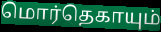
மொர்தெகாயும்